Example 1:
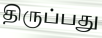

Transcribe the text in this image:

திருப்பது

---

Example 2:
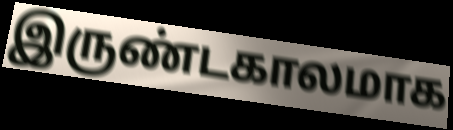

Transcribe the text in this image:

இருண்டகாலமாக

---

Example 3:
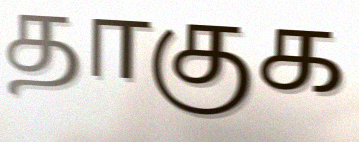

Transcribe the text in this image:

தாகுக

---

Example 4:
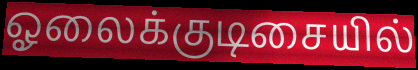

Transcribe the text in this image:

ஓலைக்குடிசையில்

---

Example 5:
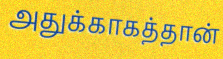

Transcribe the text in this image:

அதுக்காகத்தான்